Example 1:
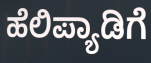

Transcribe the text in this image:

ಹೆಲಿಪ್ಯಾಡಿಗೆ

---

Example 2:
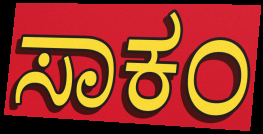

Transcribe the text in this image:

ಸಾಕಂ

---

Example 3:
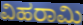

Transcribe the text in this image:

ವಿಹರಾಮಿ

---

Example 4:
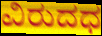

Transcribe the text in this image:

ವಿರುದಧ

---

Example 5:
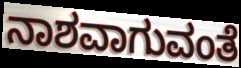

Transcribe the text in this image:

ನಾಶವಾಗುವಂತೆ